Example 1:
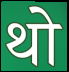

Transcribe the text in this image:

थो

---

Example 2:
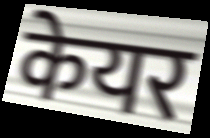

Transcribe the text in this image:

केयर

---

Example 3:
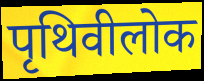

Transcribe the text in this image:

पृथिवीलोक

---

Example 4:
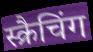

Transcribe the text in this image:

स्क्रैचिंग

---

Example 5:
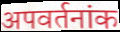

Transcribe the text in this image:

अपवर्तनांक